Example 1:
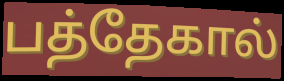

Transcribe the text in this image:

பத்தேகால்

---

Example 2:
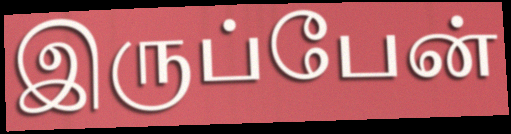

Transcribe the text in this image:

இருப்பேன்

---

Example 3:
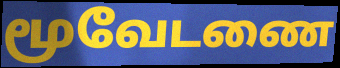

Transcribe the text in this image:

மூவேடணை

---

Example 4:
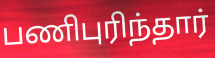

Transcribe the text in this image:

பணிபுரிந்தார்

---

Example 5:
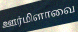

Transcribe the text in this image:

ஊர்மிளாவை